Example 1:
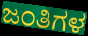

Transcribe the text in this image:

ಜಂತಿಗಳ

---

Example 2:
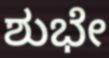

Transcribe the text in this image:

ಶುಭೇ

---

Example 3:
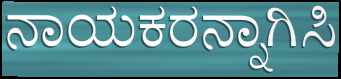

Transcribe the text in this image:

ನಾಯಕರನ್ನಾಗಿಸಿ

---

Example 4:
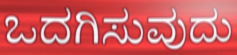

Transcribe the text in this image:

ಒದಗಿಸುವುದು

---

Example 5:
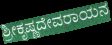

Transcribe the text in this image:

ಶ್ರೀಕೃಷ್ಣದೇವರಾಯನ